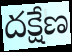
దక్షేణ